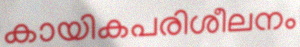
കായികപരിശീലനം